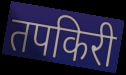
तपकिरी